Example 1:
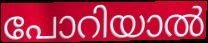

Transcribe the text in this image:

പോറിയാൽ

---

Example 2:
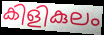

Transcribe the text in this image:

കിളികുലം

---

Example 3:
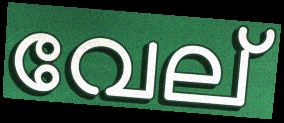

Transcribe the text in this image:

വേല്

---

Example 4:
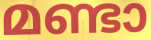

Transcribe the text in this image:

മണ്ടാ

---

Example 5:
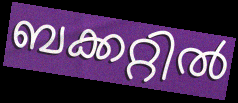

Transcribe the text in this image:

ബക്കറ്റിൽ